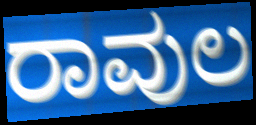
ರಾವುಲ